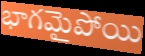
భాగమైపోయి